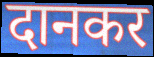
दानकर